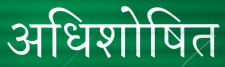
अधिशोषित